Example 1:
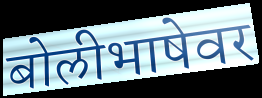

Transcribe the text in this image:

बोलीभाषेवर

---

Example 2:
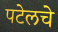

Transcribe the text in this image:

पटेलचे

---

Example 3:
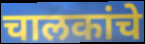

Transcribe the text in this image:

चालकांचे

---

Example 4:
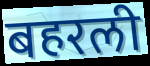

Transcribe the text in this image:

बहरली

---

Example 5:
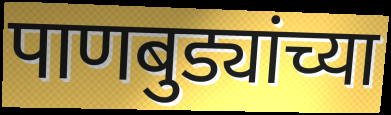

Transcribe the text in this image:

पाणबुड्यांच्या